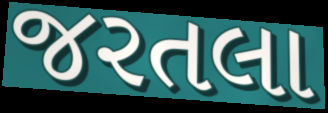
જરતલા